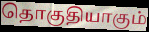
தொகுதியாகும்